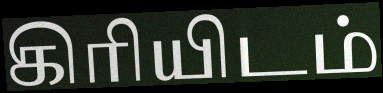
கிரியிடம்